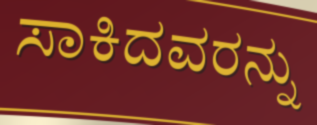
ಸಾಕಿದವರನ್ನು